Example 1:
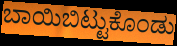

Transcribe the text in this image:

ಬಾಯಿಬಿಟ್ಟುಕೊಂಡು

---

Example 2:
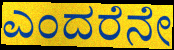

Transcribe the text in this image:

ಎಂದರೆನೇ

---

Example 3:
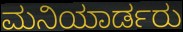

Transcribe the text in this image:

ಮನಿಯಾರ್ಡರು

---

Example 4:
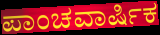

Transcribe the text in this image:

ಪಾಂಚವಾರ್ಷಿಕ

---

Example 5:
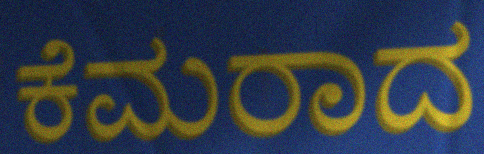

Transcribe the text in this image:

ಕೆಮರಾದ